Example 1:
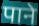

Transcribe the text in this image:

पाने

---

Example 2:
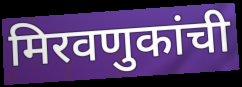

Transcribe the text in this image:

मिरवणुकांची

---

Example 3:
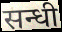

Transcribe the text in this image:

सन्धी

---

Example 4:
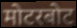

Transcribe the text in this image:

मोटरबोट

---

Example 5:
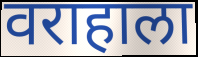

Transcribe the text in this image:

वराहाला